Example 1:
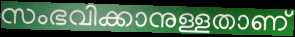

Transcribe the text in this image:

സംഭവിക്കാനുള്ളതാണ്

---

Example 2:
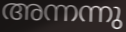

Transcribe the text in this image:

അന്നന്നു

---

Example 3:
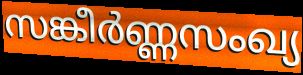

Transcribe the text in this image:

സങ്കീർണ്ണസംഖ്യ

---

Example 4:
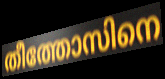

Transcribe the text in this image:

തീത്തോസിനെ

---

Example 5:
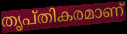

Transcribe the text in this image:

തൃപ്തികരമാണ്